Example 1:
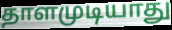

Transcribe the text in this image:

தாளமுடியாது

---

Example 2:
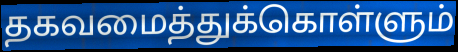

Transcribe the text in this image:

தகவமைத்துக்கொள்ளும்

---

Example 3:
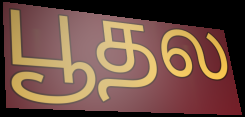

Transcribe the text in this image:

பூதல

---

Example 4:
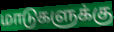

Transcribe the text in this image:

மாடுகளுக்கு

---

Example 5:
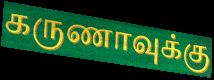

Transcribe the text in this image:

கருணாவுக்கு